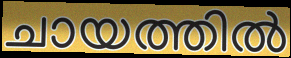
ചായത്തിൽ